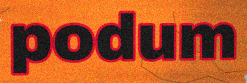
podum